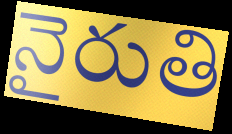
నైరుతి